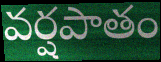
వర్షపాతం